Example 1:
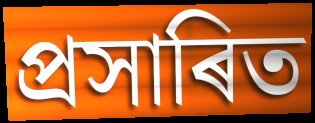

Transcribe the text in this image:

প্ৰসাৰিত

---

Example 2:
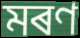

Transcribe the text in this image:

মৰণ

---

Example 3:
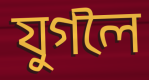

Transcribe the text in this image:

যুগলৈ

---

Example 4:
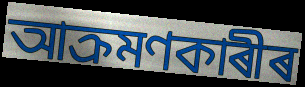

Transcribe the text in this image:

আক্ৰমণকাৰীৰ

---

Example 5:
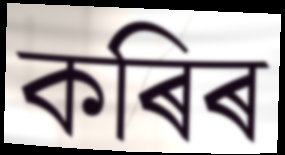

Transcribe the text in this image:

কৰিৰ